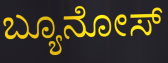
ಬ್ಯೂನೋಸ್